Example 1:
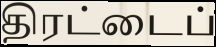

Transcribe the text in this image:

திரட்டைப்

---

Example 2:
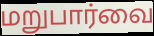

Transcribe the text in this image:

மறுபார்வை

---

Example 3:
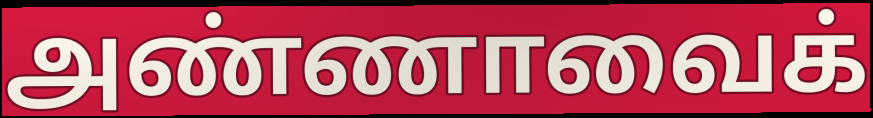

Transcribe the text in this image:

அண்ணாவைக்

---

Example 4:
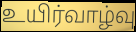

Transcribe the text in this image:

உயிர்வாழ்வு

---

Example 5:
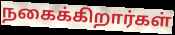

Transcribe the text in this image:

நகைக்கிறார்கள்